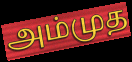
அம்முத